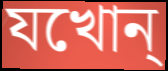
যখোন্